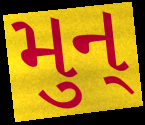
મુન્